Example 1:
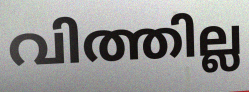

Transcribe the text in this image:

വിത്തില്ല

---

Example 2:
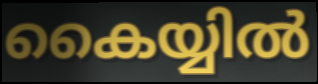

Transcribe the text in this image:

കൈയ്യിൽ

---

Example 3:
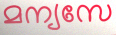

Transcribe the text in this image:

മന്യസേ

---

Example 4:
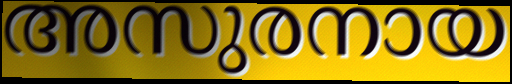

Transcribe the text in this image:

അസുരനായ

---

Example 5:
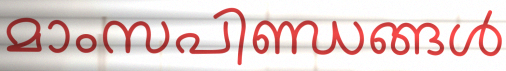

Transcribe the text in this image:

മാംസപിണ്ഡങ്ങൾ